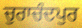
ਚੁਰਾਚੰਦਪੁਰ